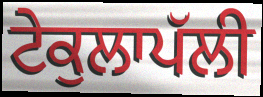
ਟੇਕੁਲਾਪੱਲੀ